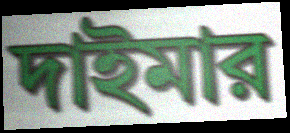
দাইমার